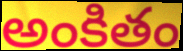
అంకితం